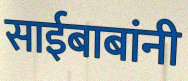
साईबाबांनी